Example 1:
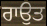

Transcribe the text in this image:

ਰਾਉਤ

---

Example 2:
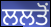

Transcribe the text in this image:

ਲਲਤੋਂ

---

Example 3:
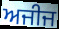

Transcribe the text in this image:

ਅਜੀਜ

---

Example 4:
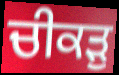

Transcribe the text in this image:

ਚੀਕੜੁ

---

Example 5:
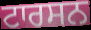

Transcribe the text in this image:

ਟਾਰਸਨ